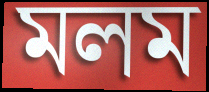
মলম